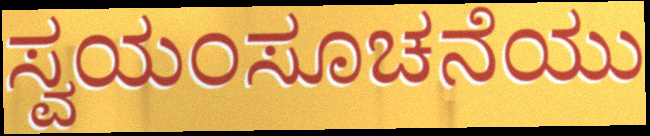
ಸ್ವಯಂಸೂಚನೆಯು